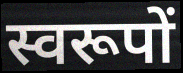
स्वरूपों